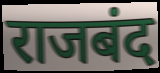
राजबंद